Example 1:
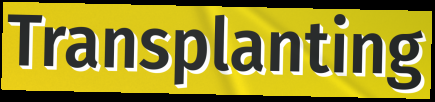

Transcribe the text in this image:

Transplanting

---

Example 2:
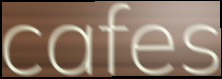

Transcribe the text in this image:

cafes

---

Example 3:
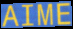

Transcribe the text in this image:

AIME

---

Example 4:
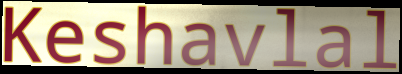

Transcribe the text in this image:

Keshavlal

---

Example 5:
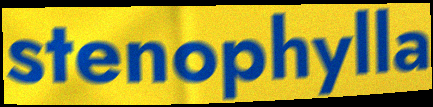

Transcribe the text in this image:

stenophylla